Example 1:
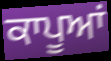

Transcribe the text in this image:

ਕਾਪੂਆਂ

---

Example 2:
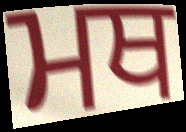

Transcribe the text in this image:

ਮਥ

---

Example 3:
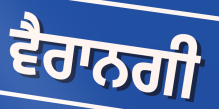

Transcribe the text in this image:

ਵੈਰਾਨਗੀ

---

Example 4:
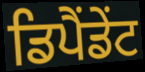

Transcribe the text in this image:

ਡਿਪੈਂਡੇਂਟ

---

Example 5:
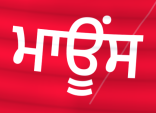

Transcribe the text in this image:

ਮਾਊਂਸ